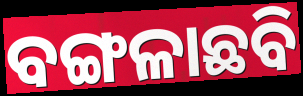
ବଙ୍ଗଳାଛବି